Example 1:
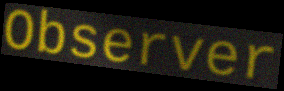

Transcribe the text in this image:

Observer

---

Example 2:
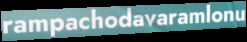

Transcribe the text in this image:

rampachodavaramlonu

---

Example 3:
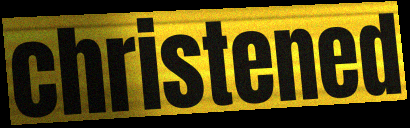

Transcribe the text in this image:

christened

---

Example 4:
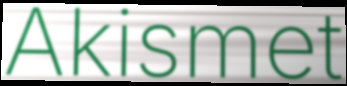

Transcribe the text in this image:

Akismet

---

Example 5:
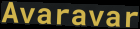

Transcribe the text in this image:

Avaravar